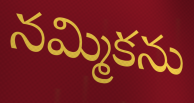
నమ్మికను